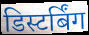
डिस्टर्बिंग